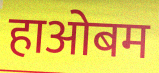
हाओबम